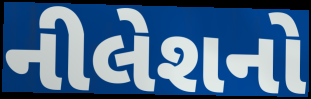
નીલેશનો